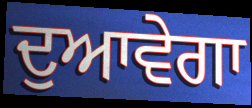
ਦੁਆਵੇਗਾ